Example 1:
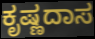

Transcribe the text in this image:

ಕೃಷ್ಣದಾಸ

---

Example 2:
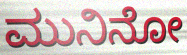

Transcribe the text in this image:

ಮುನಿನೋ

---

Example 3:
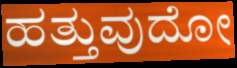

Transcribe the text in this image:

ಹತ್ತುವುದೋ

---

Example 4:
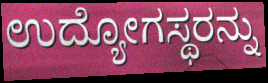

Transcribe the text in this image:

ಉದ್ಯೋಗಸ್ಥರನ್ನು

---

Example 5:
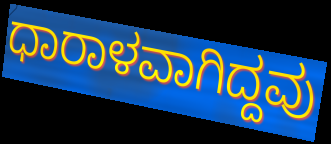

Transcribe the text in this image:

ಧಾರಾಳವಾಗಿದ್ದವು